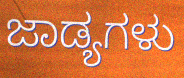
ಜಾಡ್ಯಗಳು